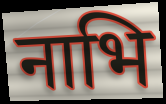
नाभि